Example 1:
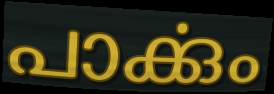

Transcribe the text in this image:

പാൎക്കും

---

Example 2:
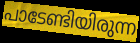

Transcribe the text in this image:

പാടേണ്ടിയിരുന്ന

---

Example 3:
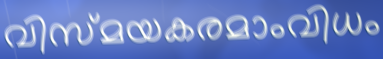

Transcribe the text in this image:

വിസ്മയകരമാംവിധം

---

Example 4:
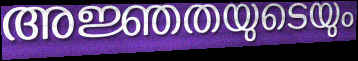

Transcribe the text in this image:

അജ്ഞതയുടെയും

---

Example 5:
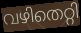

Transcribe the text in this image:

വഴിതെറ്റി